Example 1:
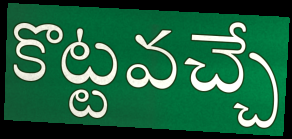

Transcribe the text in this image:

కొట్టవచ్చే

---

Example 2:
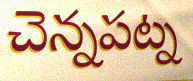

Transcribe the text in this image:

చెన్నపట్న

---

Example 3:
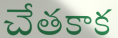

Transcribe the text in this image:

చేతకాక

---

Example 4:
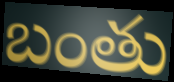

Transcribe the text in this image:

బంతు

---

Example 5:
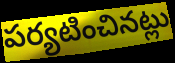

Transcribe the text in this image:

పర్యటించినట్లు